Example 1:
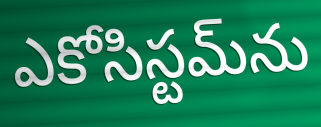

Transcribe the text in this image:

ఎకోసిస్టమ్‌ను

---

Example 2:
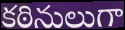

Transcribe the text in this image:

కఠినులుగా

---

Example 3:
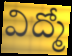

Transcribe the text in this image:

విద్మో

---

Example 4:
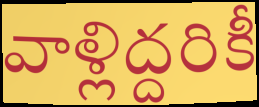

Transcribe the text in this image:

వాళ్లిద్దరికీ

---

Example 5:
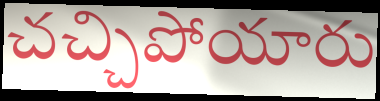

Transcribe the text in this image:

చచ్చిపోయారు